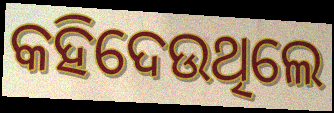
କହିଦେଉଥିଲେ